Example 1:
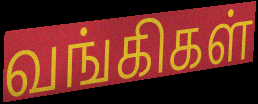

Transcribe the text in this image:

வங்கிகள்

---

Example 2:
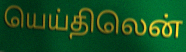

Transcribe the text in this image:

யெய்திலென்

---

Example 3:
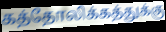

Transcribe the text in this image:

கத்தோலிக்கத்துக்கு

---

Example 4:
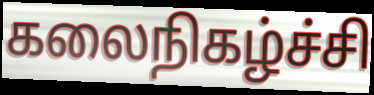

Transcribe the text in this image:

கலைநிகழ்ச்சி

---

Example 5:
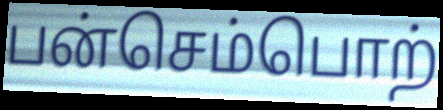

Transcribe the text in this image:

பன்செம்பொற்